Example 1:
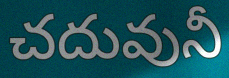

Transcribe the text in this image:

చదువునీ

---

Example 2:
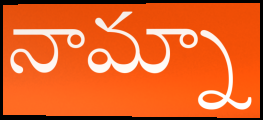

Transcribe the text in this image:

నామ్నా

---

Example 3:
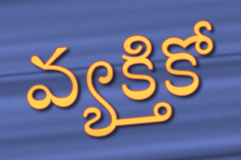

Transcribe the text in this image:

వ్యక్తికో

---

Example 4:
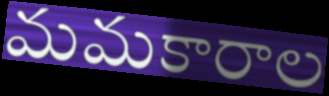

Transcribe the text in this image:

మమకారాల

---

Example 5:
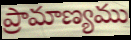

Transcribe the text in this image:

ప్రామాణ్యము